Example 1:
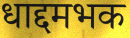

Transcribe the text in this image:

धाद्दमभक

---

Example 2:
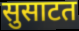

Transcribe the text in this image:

सुसाटत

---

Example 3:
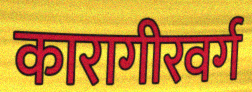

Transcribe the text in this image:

कारागीरवर्ग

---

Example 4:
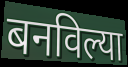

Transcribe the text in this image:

बनविल्या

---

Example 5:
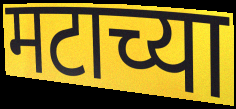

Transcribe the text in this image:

मटाच्या